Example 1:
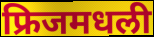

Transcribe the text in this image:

फ्रिजमधली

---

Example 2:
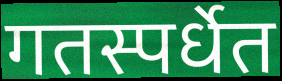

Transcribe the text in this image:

गतस्पर्धेत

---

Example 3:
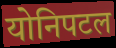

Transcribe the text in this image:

योनिपटल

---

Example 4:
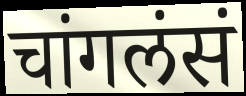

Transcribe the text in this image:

चांगलंसं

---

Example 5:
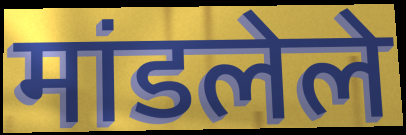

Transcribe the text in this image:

मांडलेले